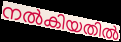
നൽകിയതിൽ